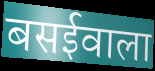
बसईवाला